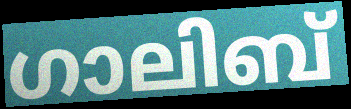
ഗാലിബ്